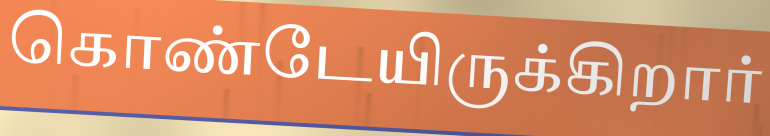
கொண்டேயிருக்கிறார்